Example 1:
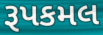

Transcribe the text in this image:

રૂપકમલ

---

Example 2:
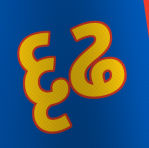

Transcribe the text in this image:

દૃઢ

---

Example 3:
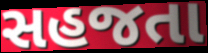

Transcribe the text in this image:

સહજતા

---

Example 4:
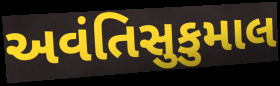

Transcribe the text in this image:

અવંતિસુકુમાલ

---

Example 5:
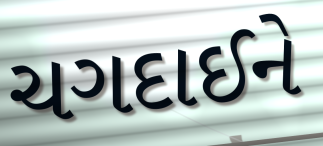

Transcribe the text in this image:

ચગદાઈને